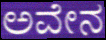
ಅವೇನ